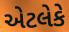
એટલેકે